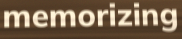
memorizing